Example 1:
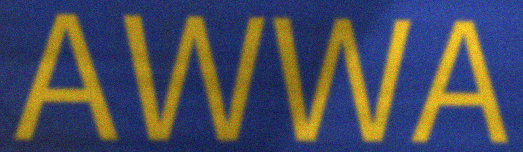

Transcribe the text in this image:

AWWA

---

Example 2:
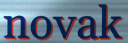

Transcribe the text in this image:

novak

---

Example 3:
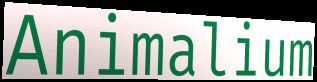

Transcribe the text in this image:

Animalium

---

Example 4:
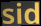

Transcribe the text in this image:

sid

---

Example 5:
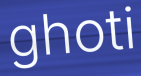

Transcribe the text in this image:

ghoti